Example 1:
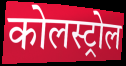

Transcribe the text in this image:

कोलस्ट्रोल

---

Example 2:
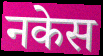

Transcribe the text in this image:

नकेस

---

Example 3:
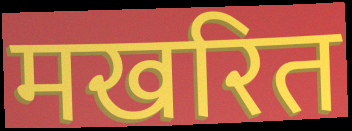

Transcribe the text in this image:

मखरित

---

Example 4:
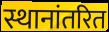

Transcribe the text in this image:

स्थानांतरित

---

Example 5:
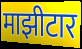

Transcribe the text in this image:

माझीटार